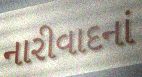
નારીવાદનાં